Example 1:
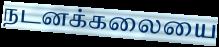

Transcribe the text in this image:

நடனக்கலையை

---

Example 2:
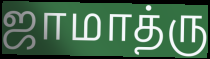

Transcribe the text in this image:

ஜாமாத்ரு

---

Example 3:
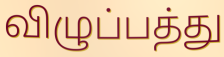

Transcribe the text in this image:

விழுப்பத்து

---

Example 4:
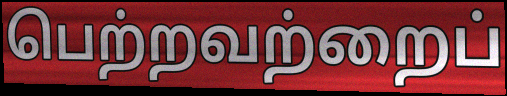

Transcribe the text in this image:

பெற்றவற்றைப்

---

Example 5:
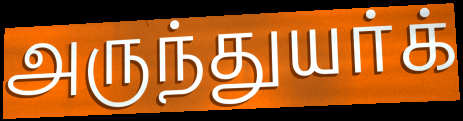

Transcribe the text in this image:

அருந்துயர்க்